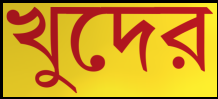
খুদের